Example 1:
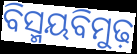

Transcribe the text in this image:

ବିସ୍ମୟବିମୁଢ଼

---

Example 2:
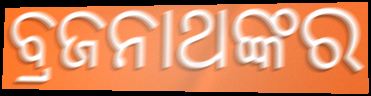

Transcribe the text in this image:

ବ୍ରଜନାଥଙ୍କର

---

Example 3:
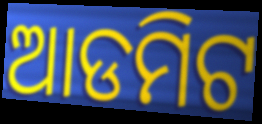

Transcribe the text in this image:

ଆଡମିଟ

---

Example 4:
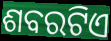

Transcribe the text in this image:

ଶବରଟିଏ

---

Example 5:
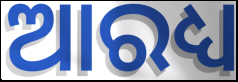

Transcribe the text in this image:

ଆରଧ୍ୟ